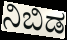
ನಿಬಿಡ